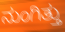
ನುಂಗಿತ್ತು